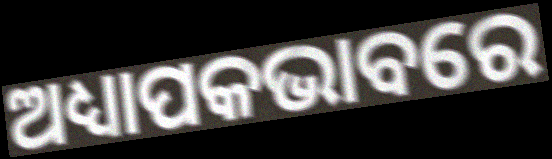
ଅଧ୍ୟାପକଭାବରେ